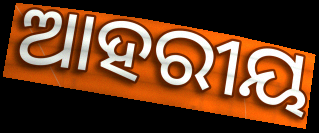
ଆହରୀୟ